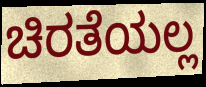
ಚಿರತೆಯಲ್ಲ